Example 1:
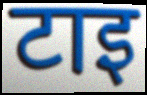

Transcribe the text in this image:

टाइ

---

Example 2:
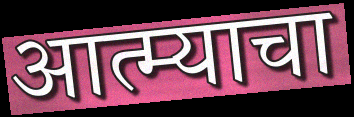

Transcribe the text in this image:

आत्म्याचा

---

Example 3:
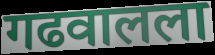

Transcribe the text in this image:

गढवालला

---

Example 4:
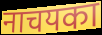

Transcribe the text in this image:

नाचयका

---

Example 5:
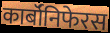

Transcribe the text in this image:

कार्बॉनिफेरस